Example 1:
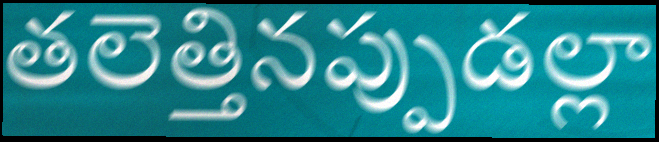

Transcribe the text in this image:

తలెత్తినప్పుడల్లా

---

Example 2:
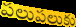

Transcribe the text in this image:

పలుపలుకు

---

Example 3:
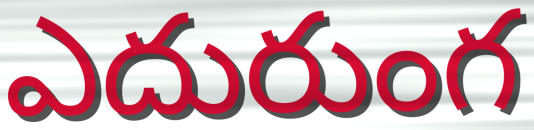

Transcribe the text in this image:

ఎదురుంగ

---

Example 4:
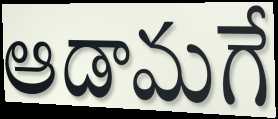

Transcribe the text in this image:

ఆడామగే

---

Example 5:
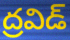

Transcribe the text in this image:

ద్రవిడ్